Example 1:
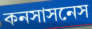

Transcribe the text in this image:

কনসাসনেস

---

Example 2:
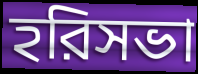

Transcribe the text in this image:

হরিসভা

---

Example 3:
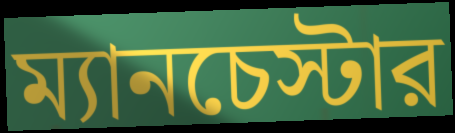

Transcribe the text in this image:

ম্যানচেস্টার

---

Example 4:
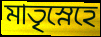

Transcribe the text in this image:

মাতৃস্নেহে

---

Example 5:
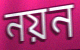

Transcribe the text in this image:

নয়ন